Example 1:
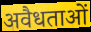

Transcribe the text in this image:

अवैधताओं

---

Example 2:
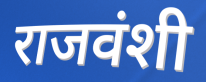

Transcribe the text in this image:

राजवंशी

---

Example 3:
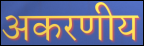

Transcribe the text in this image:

अकरणीय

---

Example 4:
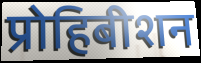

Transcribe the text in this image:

प्रोहिबीशन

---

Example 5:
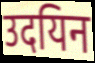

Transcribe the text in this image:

उदयिन